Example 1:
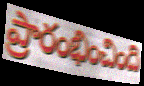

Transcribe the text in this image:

ప్రారంభించింది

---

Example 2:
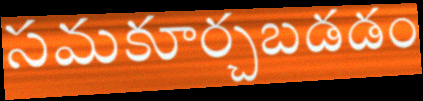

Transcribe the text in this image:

సమకూర్చబడడం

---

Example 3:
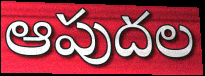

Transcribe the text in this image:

ఆపుదల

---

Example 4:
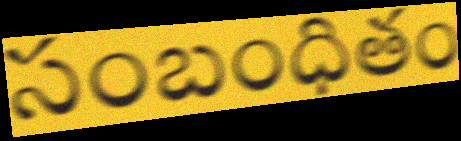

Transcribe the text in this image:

సంబంధితం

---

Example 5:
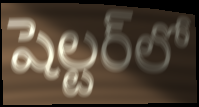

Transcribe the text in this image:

షెల్టర్‌లో